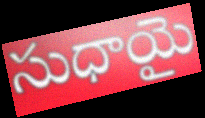
సుధాయై